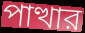
পাত্থার